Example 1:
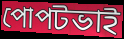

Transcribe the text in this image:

পোপটভাই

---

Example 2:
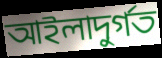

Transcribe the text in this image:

আইলাদুর্গত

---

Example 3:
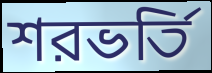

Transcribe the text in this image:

শরভর্তি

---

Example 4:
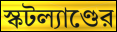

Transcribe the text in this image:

স্কটল্যাণ্ডের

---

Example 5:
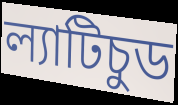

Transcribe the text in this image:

ল্যাটিচুড